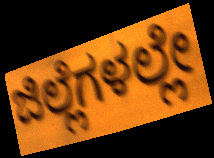
ಜಿಲ್ಲೆಗಳಲ್ಲೇ